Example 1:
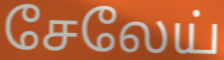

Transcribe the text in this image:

சேலேய்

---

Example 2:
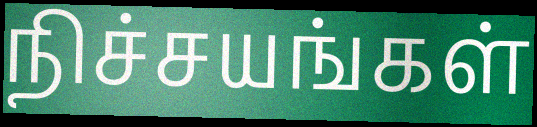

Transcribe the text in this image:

நிச்சயங்கள்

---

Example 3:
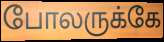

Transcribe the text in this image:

போலருக்கே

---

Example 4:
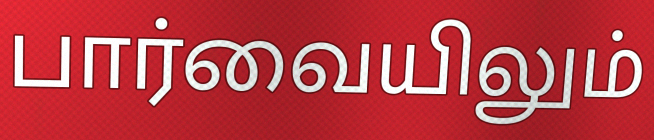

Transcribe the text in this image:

பார்வையிலும்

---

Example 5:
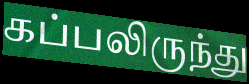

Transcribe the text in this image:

கப்பலிருந்து